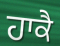
ਹਾਕੈ